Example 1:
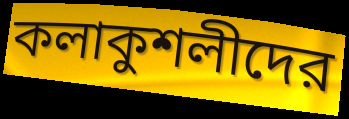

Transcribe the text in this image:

কলাকুশলীদের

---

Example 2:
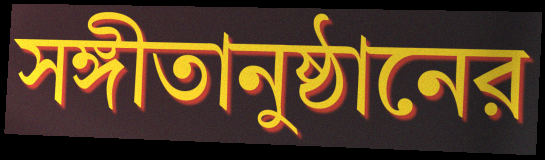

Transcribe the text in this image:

সঙ্গীতানুষ্ঠানের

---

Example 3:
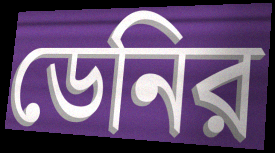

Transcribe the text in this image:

ডেনির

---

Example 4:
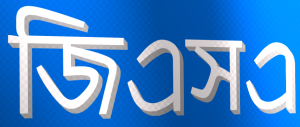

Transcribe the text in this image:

জিএসএ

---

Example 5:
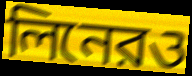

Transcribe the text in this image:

লিনেরও